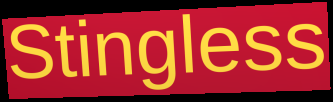
Stingless